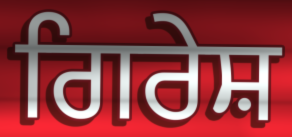
ਗਿਰੇਸ਼